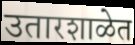
उतारशाळेत